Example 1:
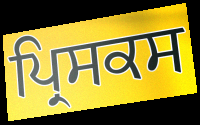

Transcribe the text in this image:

ਪ੍ਰਿਸਕਸ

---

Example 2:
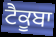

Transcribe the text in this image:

ਟੈਕੂਬਾ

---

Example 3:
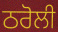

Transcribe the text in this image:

ਠਰੋਲੀ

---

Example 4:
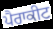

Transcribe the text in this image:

ਪੈਰਾਕੀਟ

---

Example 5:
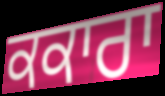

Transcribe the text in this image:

ਕਕਾਰਾ